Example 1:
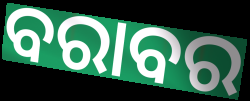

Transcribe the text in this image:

ବରାବର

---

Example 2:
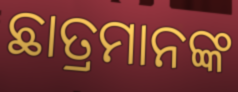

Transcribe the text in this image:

ଛାତ୍ରମାନଙ୍କ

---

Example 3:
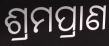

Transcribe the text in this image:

ଶ୍ରମପ୍ରାଣ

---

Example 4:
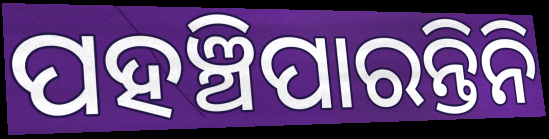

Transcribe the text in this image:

ପହଞ୍ଚିପାରନ୍ତିନି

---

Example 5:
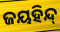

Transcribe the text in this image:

ଜୟହିନ୍ଦ୍